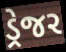
ડ્રેજર